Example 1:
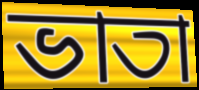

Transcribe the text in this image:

ভাতা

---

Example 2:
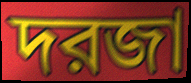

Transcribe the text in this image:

দরজা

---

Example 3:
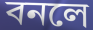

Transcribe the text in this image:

বনলে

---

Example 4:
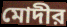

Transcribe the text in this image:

মোদীর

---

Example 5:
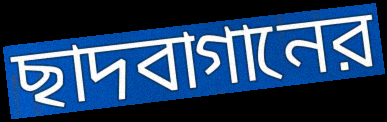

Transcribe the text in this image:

ছাদবাগানের